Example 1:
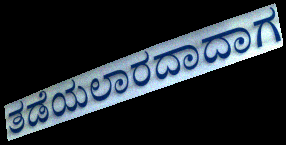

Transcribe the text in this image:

ತಡೆಯಲಾರದಾದಾಗ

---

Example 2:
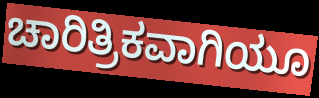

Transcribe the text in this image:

ಚಾರಿತ್ರಿಕವಾಗಿಯೂ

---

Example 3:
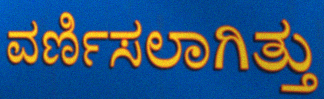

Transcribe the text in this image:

ವರ್ಣಿಸಲಾಗಿತ್ತು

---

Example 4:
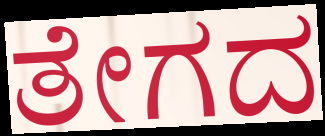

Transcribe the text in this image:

ತೇಗದ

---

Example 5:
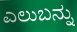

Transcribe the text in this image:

ಎಲುಬನ್ನು